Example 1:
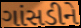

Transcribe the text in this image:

ગાંસડીને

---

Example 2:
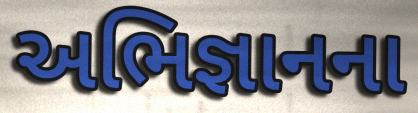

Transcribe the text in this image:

અભિજ્ઞાનના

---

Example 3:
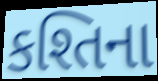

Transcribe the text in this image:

કશ્તિના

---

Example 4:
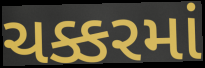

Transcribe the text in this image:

ચક્કરમાં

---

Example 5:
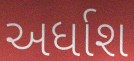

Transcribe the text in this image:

અર્ધાશ